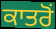
ਕਾਤਰੋੰ